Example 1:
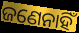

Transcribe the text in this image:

ଜଣେନାହିଁ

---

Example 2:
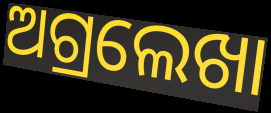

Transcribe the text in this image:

ଅଗ୍ରଲେଖା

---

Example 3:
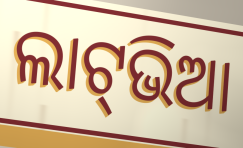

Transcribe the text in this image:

ଲାଟ୍‍ଭିଆ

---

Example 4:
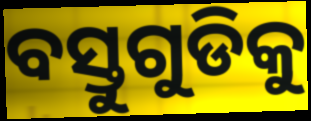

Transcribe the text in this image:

ବସ୍ତୁଗୁଡିକୁ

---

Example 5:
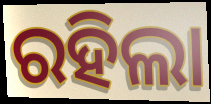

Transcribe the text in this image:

ରହିଲା